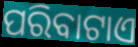
ପରିବାଟାଏ